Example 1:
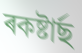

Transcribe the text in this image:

ৰকষ্টাৰ্ছ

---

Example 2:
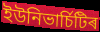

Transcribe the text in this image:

ইউনিভাৰ্চিটিৰ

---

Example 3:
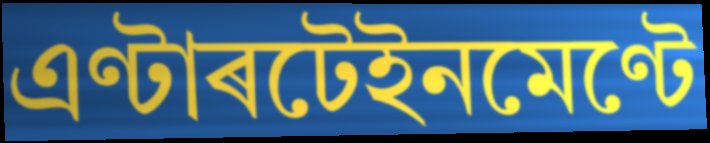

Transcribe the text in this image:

এণ্টাৰটেইনমেণ্টে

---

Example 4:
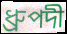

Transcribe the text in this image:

ধ্ৰুপদী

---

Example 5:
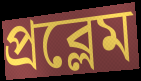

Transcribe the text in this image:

প্ৰব্লেম